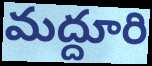
మద్దూరి